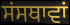
ਸਂਸਥਾਵਾਂ